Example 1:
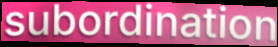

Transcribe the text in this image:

subordination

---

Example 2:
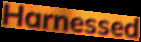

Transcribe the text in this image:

Harnessed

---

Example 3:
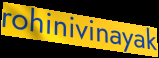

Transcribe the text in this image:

rohinivinayak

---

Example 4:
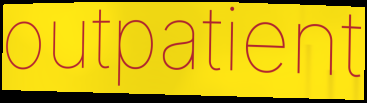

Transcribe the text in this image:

outpatient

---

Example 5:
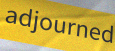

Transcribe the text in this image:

adjourned